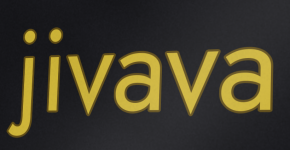
jivava